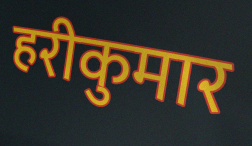
हरीकुमार